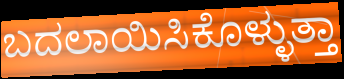
ಬದಲಾಯಿಸಿಕೊಳ್ಳುತ್ತಾ